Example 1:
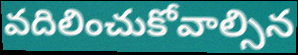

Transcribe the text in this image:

వదిలించుకోవాల్సిన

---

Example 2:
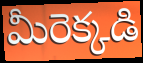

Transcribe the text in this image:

మీరెక్కడి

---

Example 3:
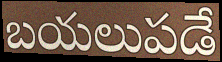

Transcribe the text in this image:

బయలుపడే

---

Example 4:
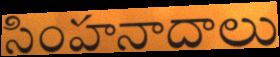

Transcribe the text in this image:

సింహనాదాలు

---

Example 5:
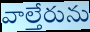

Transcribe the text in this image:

వాల్తేరును